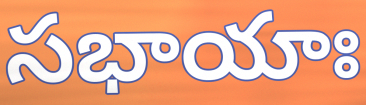
సభాయాః